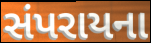
સંપરાયના